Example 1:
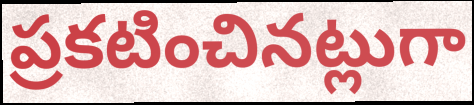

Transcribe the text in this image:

ప్రకటించినట్లుగా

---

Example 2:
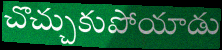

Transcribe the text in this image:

చొచ్చుకుపోయాడు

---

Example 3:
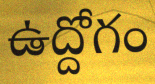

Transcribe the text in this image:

ఉద్దోగం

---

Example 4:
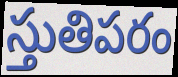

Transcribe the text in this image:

స్తుతిపరం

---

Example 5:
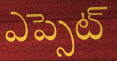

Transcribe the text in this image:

ఎప్సెట్